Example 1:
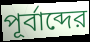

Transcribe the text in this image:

পূর্বাব্দের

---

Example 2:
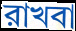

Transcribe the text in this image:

রাখবা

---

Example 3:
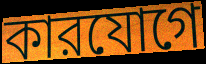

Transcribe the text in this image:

কারযোগে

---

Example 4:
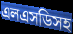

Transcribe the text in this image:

এলএসডিসহ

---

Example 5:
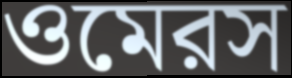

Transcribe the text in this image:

ওমেরস